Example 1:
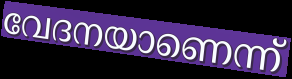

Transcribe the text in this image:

വേദനയാണെന്ന്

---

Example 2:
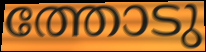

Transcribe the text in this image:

ത്തോടു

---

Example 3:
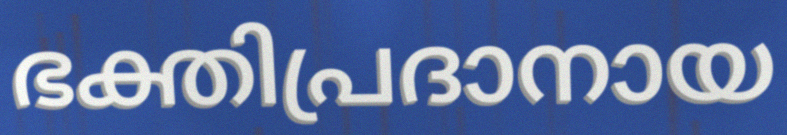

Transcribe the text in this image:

ഭക്തിപ്രദാനായ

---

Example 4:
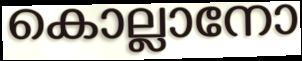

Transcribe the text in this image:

കൊല്ലാനോ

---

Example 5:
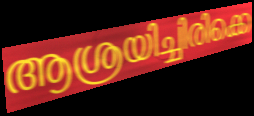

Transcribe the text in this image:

ആശ്രയിച്ചിരിക്കെ